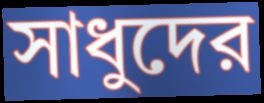
সাধুদের